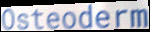
Osteoderm